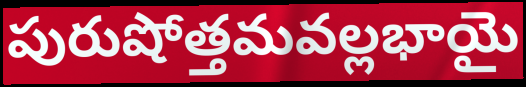
పురుషోత్తమవల్లభాయై